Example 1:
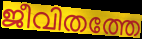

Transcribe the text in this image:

ജീവിതത്തേ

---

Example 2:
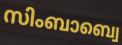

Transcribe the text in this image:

സിംബാബ്വെ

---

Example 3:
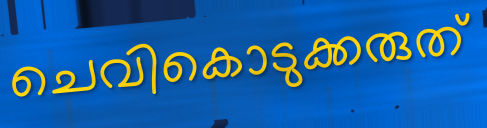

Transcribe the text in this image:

ചെവികൊടുക്കരുത്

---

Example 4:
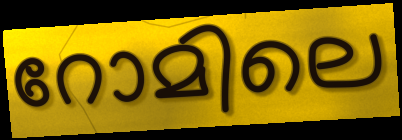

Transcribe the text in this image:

റോമിലെ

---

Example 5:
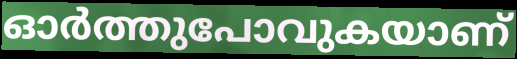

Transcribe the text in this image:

ഓർത്തുപോവുകയാണ്